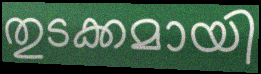
തുടക്കമായി